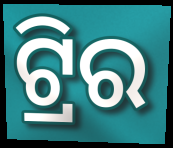
ଟ୍ରିର